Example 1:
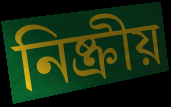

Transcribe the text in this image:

নিষ্ক্রীয়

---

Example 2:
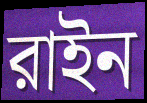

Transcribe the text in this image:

রাইন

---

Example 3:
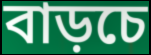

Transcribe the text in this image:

বাড়চে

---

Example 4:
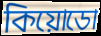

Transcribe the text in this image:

কিয়োডো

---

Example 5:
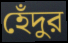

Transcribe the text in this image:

হেঁদুর